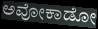
ಅವೋಕಾಡೋ